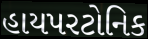
હાયપરટોનિક